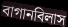
বাগানবিলাস